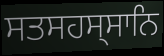
ਸਤਸਹਸ੍ਸਾਨਿ